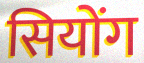
सियोंग